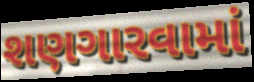
શણગારવામાં